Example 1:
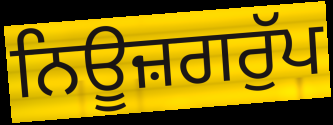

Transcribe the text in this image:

ਨਿਊਜ਼ਗਰੁੱਪ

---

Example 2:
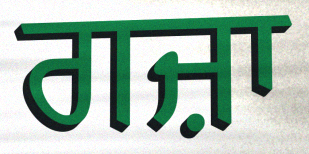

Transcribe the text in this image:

ਗਜ਼ਾ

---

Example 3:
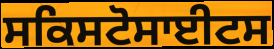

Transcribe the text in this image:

ਸਕਿਸਟੋਸਾਈਟਸ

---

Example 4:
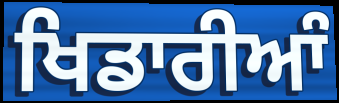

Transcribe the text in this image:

ਖਿਡਾਰੀਆੰ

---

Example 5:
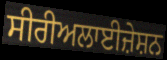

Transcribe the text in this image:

ਸੀਰੀਅਲਾਈਜ਼ੇਸ਼ਨ